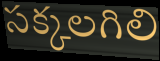
సక్కలగిలి